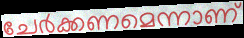
ചേർക്കണമെന്നാണ്